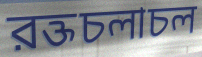
রক্তচলাচল